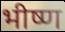
भीष्ण